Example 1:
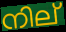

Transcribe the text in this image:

നില്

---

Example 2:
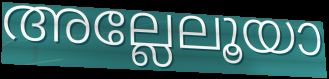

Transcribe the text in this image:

അല്ലേലൂയാ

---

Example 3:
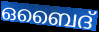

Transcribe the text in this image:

ഒബൈദ്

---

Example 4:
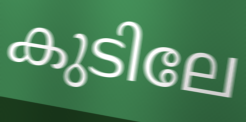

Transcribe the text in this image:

കുടിലേ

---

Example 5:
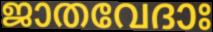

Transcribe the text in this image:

ജാതവേദാഃ